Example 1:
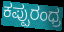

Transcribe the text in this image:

ಕಪ್ಪುರಂಧ್ರ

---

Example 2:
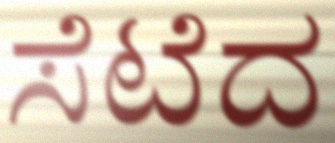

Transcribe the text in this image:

ಸೆಟೆದ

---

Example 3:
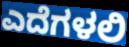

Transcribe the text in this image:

ಎದೆಗಳಲಿ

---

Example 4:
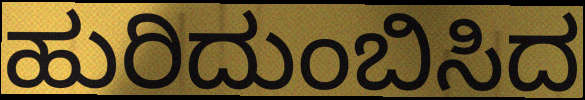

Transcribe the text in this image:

ಹುರಿದುಂಬಿಸಿದ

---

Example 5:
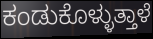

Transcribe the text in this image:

ಕಂಡುಕೊಳ್ಳುತ್ತಾಳೆ